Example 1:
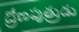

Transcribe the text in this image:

ద్రోణపుత్రుడు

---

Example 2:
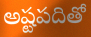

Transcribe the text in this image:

అష్టపదితో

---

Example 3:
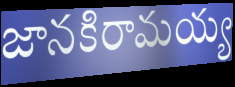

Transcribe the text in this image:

జానకిరామయ్య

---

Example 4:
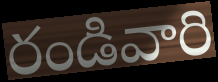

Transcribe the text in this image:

రండివారి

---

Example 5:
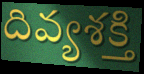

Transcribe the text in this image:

దివ్యశక్తి